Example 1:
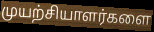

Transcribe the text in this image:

முயற்சியாளர்களை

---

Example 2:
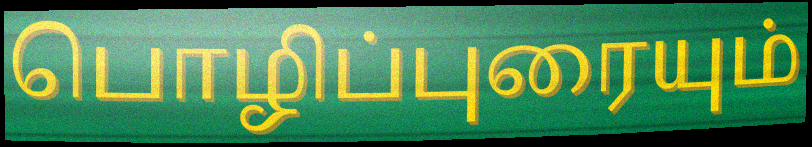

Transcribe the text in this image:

பொழிப்புரையும்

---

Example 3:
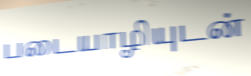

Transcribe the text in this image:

படையாழியுடன்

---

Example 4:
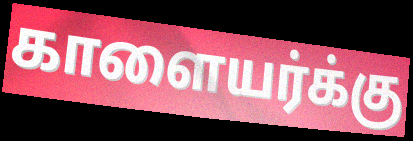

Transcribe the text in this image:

காளையர்க்கு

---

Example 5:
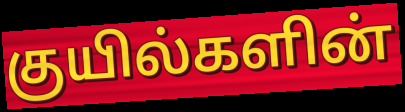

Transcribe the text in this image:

குயில்களின்